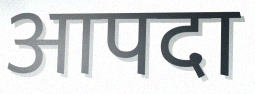
आपदा